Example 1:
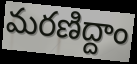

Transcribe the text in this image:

మరణిద్దాం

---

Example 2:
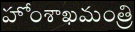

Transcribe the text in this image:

హోంశాఖమంత్రి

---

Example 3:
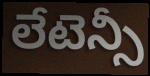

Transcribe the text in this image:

లేటెన్సీ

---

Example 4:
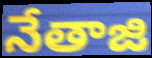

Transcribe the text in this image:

నేతాజి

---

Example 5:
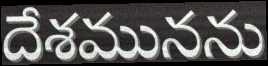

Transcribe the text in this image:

దేశమునను